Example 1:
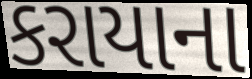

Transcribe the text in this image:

કરાયાના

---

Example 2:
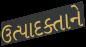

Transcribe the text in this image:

ઉત્પાદક્તાને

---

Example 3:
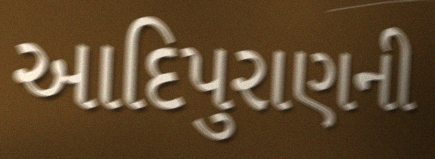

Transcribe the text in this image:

આદિપુરાણની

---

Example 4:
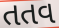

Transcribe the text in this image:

તતવ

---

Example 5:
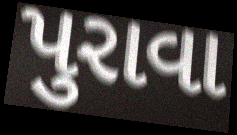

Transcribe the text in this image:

પુરાવા